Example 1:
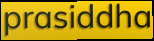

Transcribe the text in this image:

prasiddha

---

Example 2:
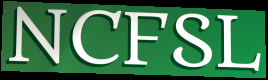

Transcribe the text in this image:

NCFSL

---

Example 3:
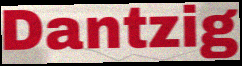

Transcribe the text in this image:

Dantzig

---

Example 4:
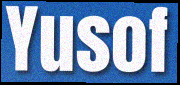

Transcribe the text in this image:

Yusof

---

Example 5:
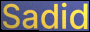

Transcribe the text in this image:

Sadid